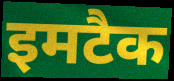
इमटैक